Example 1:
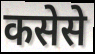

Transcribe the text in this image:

कसेसे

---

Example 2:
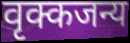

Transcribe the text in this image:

वृक्कजन्य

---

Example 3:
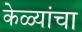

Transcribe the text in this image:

केळ्यांचा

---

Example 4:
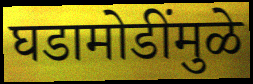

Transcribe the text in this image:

घडामोडींमुळे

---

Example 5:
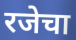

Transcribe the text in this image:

रजेचा